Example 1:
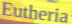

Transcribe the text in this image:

Eutheria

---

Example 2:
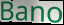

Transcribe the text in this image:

Bano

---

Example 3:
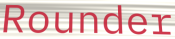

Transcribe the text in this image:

Rounder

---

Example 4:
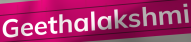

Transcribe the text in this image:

Geethalakshmi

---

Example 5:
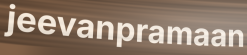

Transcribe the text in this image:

jeevanpramaan